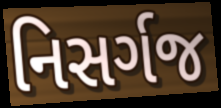
નિસર્ગજ